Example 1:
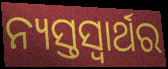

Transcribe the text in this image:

ନ୍ୟସ୍ତସ୍ୱାର୍ଥର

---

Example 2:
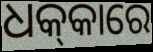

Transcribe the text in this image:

ଧକ୍‌କାରେ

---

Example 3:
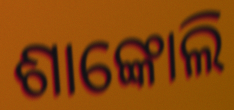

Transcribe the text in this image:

ଶାଙ୍କୋଲି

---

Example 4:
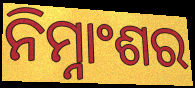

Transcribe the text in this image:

ନିମ୍ନାଂଶର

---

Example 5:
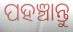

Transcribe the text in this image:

ପହଞ୍ଚାନ୍ତୁ